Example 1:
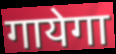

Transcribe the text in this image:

गायेगा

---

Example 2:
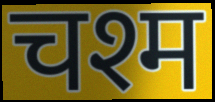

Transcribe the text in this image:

चश्म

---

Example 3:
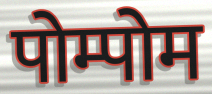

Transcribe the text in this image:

पोम्पोम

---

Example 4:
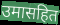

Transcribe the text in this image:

उमासहित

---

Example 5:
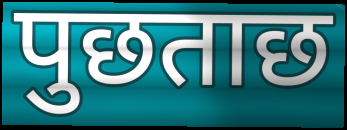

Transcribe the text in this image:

पुछताछ